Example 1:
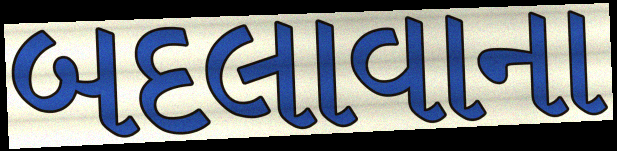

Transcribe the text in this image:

બદલાવાના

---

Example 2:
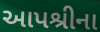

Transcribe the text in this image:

આપશ્રીના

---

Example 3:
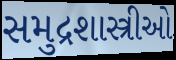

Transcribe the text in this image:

સમુદ્રશાસ્ત્રીઓ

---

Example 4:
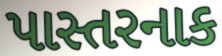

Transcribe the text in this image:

પાસ્તરનાક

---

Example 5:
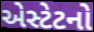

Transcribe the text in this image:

એસ્ટેટનો